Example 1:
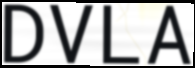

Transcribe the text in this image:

DVLA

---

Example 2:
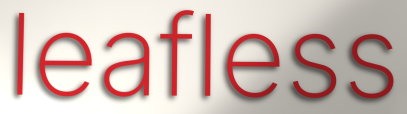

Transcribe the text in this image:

leafless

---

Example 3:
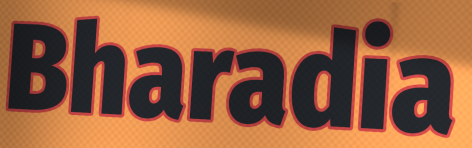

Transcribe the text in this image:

Bharadia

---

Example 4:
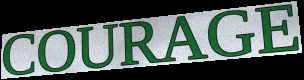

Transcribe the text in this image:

COURAGE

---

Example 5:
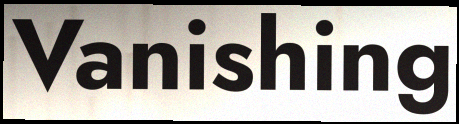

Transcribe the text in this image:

Vanishing